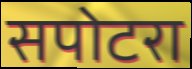
सपोटरा